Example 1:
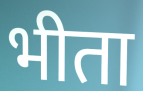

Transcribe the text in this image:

भीता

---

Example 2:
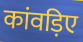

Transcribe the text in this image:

कांवड़िए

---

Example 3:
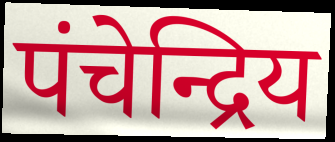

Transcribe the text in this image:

पंचेन्द्रिय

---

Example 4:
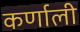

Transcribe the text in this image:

कर्णाली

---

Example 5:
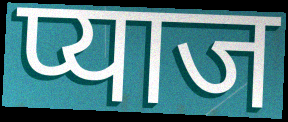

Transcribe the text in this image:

प्याज